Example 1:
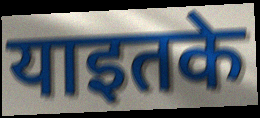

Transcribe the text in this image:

याइतके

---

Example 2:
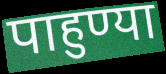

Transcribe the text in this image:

पाहुण्या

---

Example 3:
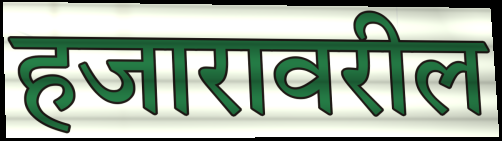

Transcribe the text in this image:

हजारावरील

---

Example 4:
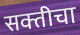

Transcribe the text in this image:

सक्‍तीचा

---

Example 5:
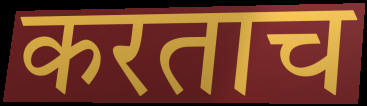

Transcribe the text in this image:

करताच